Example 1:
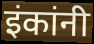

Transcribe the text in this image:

इंकांनी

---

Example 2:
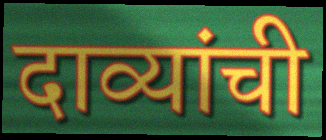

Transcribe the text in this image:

दाव्यांची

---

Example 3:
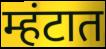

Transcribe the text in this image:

म्हंटात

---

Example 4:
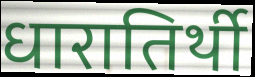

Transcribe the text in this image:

धारातिर्थी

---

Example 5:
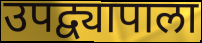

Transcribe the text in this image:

उपद्व्यापाला